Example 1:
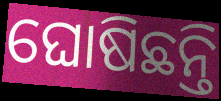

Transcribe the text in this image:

ଘୋଷିଛନ୍ତି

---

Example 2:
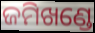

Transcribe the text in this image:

ଜମିଖଣ୍ଡେ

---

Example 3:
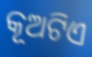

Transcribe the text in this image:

କୂଅଟିଏ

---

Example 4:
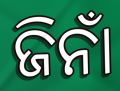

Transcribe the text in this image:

ଜିନାଁ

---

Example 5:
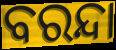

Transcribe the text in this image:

ବରନ୍ଦା